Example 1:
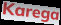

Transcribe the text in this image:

Karega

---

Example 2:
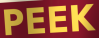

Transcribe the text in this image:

PEEK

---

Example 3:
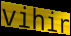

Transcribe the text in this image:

vihir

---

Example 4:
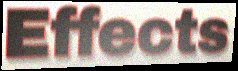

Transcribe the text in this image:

Effects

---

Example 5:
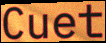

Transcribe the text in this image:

Cuet